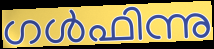
ഗൾഫിന്നു